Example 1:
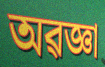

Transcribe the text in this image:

অৱজ্ঞা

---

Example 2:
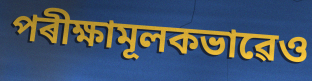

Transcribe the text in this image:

পৰীক্ষামূলকভাৱেও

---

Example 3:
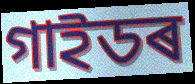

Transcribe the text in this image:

গাইডৰ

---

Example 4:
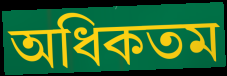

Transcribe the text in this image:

অধিকতম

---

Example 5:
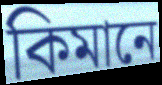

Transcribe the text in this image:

কিমানে